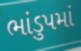
ભાંડુપમાં